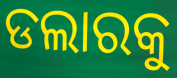
ଡଲାରକୁ